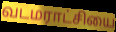
வடமராட்சியை